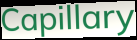
Capillary